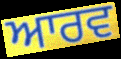
ਆਰਵ